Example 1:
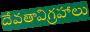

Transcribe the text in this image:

దేవతావిగ్రహాలు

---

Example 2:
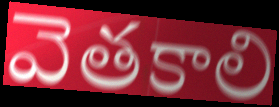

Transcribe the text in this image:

వెతకాలి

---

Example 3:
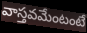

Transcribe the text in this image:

వాస్తవమేంటంటే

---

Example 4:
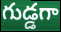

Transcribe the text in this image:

గుడ్డగా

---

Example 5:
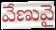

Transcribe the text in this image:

వేణువై